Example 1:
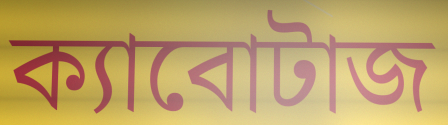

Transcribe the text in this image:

ক্যাবোটাজ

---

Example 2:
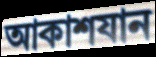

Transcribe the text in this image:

আকাশযান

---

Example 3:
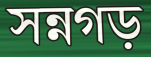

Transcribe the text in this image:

সন্নগড়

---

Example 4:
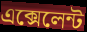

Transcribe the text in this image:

এক্সেলেন্ট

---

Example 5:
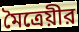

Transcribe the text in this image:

মৈত্রেয়ীর